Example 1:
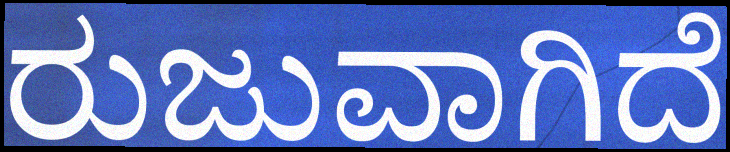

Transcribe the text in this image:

ರುಜುವಾಗಿದೆ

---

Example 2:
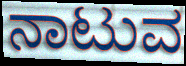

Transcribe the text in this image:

ನಾಟುವ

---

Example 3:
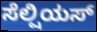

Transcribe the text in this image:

ಸೆಲ್ಷಿಯಸ್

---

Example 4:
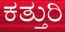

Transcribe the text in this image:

ಕತ್ತುರಿ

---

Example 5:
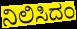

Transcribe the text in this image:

ನಿಲಿಸಿದಂ